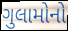
ગુલામોનો